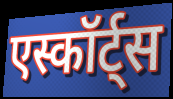
एस्कॉर्ट्स